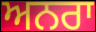
ਅਨਰਾ